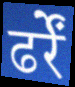
ढर्रें